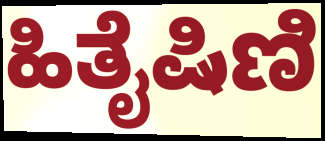
ಹಿತೈಷಿಣಿ